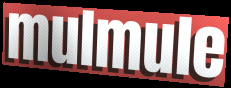
mulmule